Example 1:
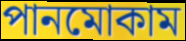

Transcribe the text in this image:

পানমোকাম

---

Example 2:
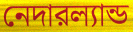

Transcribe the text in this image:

নেদারল্যান্ড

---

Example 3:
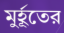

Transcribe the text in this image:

মুর্হূতের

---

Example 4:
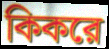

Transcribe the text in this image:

কিকরে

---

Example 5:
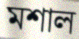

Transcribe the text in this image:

মশাল